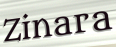
Zinara